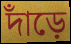
দাঁড়ে